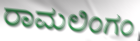
ರಾಮಲಿಂಗಂ